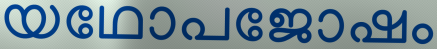
യഥോപജോഷം